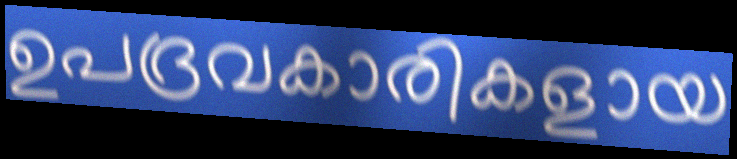
ഉപദ്രവകാരികളായ